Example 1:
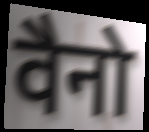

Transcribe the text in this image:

वैनो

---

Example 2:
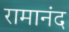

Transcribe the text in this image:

रामानंद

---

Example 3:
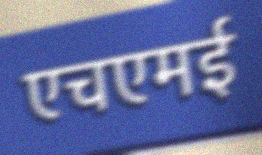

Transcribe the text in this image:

एचएमई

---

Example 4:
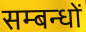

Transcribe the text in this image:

सम्बन्धों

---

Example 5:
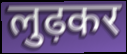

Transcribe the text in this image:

लुढ़कर